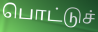
பொட்டுச்